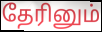
தேரினும்